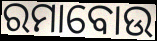
ରମାବୋଉ